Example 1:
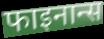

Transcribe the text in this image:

फाइनान्स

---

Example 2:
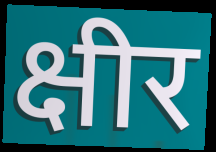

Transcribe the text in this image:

क्षीर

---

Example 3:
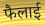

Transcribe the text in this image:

फैलाई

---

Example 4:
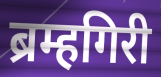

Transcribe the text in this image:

ब्रम्हगिरी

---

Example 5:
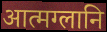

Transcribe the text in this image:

आत्मग्लानि